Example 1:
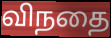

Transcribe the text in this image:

விநதை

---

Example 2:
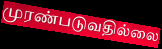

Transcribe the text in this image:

முரண்படுவதில்லை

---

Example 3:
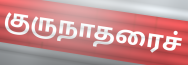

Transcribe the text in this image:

குருநாதரைச்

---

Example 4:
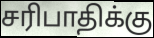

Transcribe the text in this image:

சரிபாதிக்கு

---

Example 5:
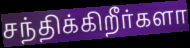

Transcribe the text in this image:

சந்திக்கிறீர்களா